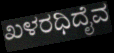
ಖಳರಧಿದೈವ